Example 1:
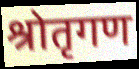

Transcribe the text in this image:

श्रोतृगण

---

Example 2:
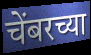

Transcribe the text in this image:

चेंबरच्या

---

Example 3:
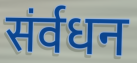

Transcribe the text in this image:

संर्वधन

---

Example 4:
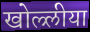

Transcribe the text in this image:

खोल्लीया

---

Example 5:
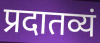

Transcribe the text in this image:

प्रदातव्यं